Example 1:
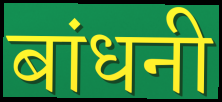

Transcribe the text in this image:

बांधनी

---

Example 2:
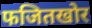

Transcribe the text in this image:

फजितखोर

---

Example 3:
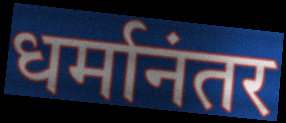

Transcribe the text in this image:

धर्मानंतर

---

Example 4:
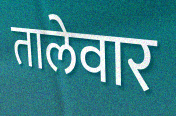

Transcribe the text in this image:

तालेवार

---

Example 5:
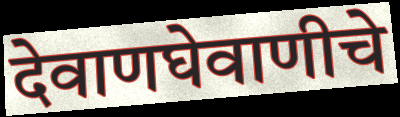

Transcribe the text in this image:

देवाणघेवाणीचे